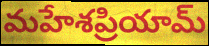
మహేశప్రియామ్